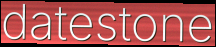
datestone